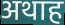
अथाह